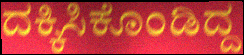
ದಕ್ಕಿಸಿಕೊಂಡಿದ್ದ